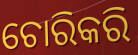
ଚୋରିକରି